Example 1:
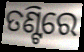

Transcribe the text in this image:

ତଣ୍ଟିରେ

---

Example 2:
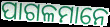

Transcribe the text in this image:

ପାଗଳମାନେ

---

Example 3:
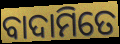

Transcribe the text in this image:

ବାଦାମିତେ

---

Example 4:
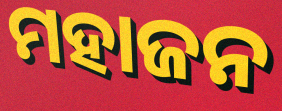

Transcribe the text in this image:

ମହାଜନ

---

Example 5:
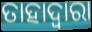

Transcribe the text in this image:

ତାହାଦ୍ଵାରା